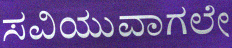
ಸವಿಯುವಾಗಲೇ